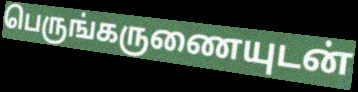
பெருங்கருணையுடன்